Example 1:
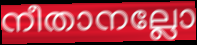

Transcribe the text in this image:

നീതാനല്ലോ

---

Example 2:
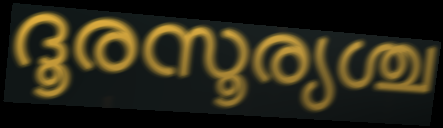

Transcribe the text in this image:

ദൂരസൂര്യശ്ച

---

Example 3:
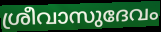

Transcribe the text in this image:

ശ്രീവാസുദേവം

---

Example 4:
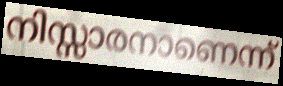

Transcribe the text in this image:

നിസ്സാരനാണെന്ന്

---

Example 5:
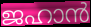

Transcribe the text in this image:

ജഹാൻ